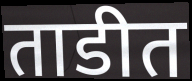
ताडीत